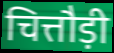
चित्तौड़ी